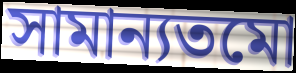
সামান্যতমো